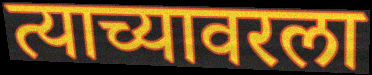
त्याच्यावरला